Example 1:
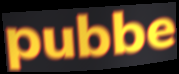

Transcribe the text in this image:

pubbe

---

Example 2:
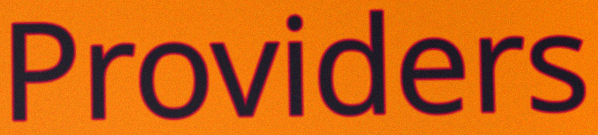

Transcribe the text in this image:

Providers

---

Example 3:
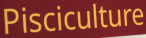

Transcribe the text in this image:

Pisciculture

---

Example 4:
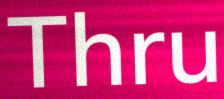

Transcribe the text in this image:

Thru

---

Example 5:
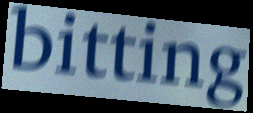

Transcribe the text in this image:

bitting